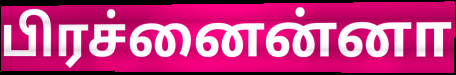
பிரச்னைன்னா